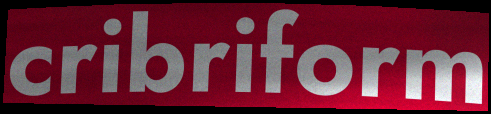
cribriform